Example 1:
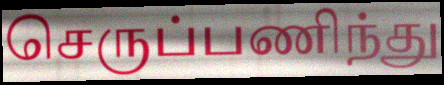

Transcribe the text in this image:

செருப்பணிந்து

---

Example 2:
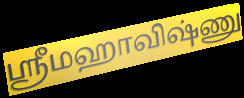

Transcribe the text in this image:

ஸ்ரீமஹாவிஷ்ணு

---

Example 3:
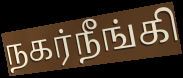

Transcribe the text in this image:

நகர்நீங்கி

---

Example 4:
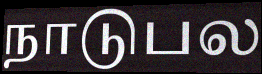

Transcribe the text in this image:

நாடுபல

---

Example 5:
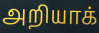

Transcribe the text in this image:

அறியாக்